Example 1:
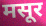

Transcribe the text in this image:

मसूर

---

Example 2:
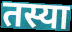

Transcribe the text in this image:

तस्या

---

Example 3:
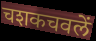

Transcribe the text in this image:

चशकचवलें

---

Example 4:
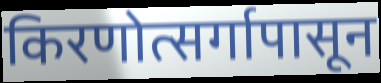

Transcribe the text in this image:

किरणोत्सर्गापासून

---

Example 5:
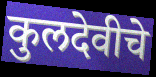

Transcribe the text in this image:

कुलदेवीचे